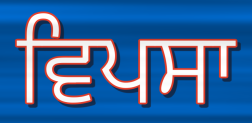
ਵਿਪਸਾ